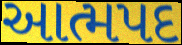
આત્મપદ